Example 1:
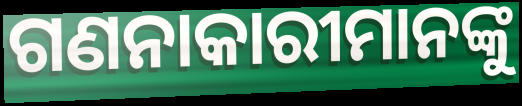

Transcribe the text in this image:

ଗଣନାକାରୀମାନଙ୍କୁ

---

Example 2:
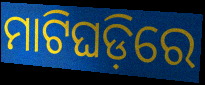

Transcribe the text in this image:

ମାଟିଘଡ଼ିରେ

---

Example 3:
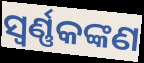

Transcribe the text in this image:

ସ୍ୱର୍ଣ୍ଣକଙ୍କଣ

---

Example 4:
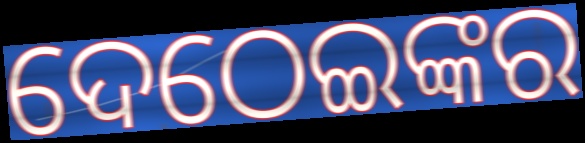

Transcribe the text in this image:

ଦେଠେଇଙ୍କର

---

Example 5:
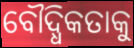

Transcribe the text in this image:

ବୌଦ୍ଧିକତାକୁ